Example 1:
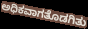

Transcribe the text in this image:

ಅಧಿಕವಾಗತೊಡಗಿತು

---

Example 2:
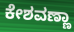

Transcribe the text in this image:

ಕೇಶವಣ್ಣಾ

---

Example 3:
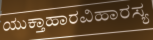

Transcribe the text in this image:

ಯುಕ್ತಾಹಾರವಿಹಾರಸ್ಯ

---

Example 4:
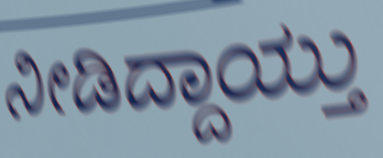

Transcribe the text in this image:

ನೀಡಿದ್ದಾಯ್ತು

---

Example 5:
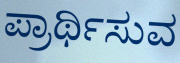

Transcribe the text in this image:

ಪ್ರಾರ್ಥಿಸುವ